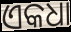
ଏକଧା